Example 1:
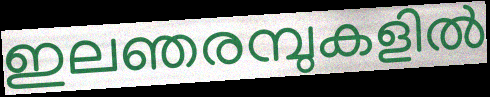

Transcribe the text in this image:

ഇലഞരമ്പുകളിൽ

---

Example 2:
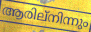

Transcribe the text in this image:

ആരില്നിന്നും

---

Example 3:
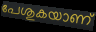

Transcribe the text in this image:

പേശുകയാണ്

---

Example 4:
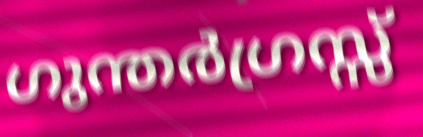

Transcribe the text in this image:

ഗുന്തർഗ്രസ്സ്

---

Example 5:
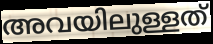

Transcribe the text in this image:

അവയിലുള്ളത്